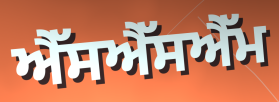
ਐੱਸਐੱਸਐੱਮ